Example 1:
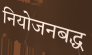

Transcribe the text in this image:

नियोजनबद्ध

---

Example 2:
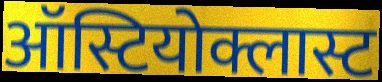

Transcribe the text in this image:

ऑस्टियोक्लास्ट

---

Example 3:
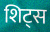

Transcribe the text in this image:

शिट्स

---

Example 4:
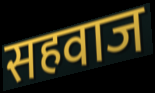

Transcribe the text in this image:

सहवाज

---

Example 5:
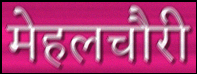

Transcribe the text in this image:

मेहलचौरी